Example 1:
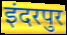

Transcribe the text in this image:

इंदरपुर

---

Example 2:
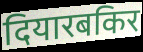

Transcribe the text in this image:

दियारबकिर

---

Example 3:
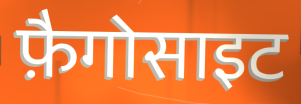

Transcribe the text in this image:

फ़ैगोसाइट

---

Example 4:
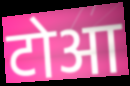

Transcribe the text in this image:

टोआ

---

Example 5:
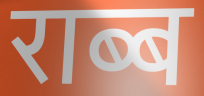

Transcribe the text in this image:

राब्ब